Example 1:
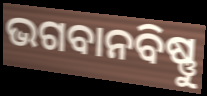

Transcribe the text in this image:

ଭଗବାନବିଷ୍ଣୁ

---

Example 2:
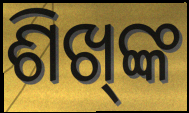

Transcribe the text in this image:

ଶିଖ୍‍ଙ୍କ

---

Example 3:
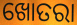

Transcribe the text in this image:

ଖୋତରା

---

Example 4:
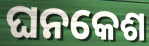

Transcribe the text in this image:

ଘନକେଶ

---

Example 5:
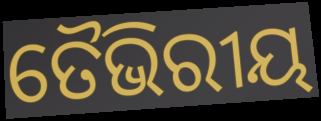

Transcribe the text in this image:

ତୈଭିରୀୟ